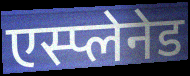
एस्प्लेनेड